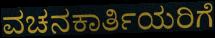
ವಚನಕಾರ್ತಿಯರಿಗೆ